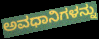
ಅವಧಾನಿಗಳನ್ನು